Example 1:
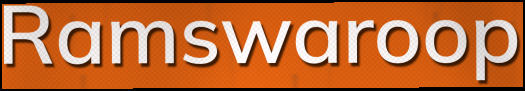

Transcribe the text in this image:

Ramswaroop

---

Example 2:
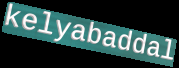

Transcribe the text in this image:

kelyabaddal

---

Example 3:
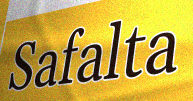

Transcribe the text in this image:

Safalta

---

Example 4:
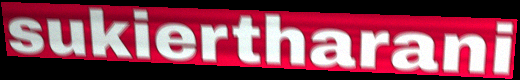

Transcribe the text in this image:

sukiertharani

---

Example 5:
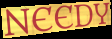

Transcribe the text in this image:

NEEDY